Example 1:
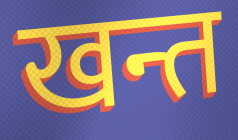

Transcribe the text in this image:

खन्त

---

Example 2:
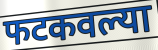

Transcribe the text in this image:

फटकवल्या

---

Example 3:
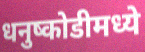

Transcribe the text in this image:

धनुष्कोडीमध्ये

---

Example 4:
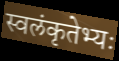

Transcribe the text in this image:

स्वलंकृतेभ्यः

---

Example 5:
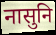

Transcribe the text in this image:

नासुनि